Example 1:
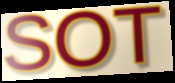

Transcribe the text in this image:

SOT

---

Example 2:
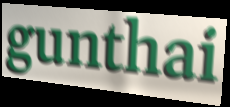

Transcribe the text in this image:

gunthai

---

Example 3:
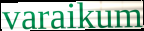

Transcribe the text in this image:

varaikum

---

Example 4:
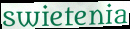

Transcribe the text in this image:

swietenia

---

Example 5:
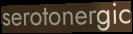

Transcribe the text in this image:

serotonergic